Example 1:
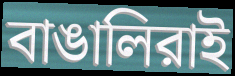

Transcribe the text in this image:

বাঙালিরাই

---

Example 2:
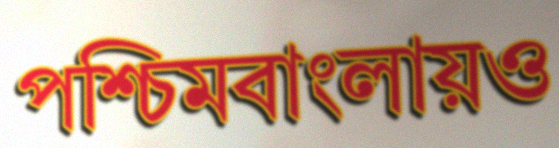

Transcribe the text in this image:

পশ্চিমবাংলায়ও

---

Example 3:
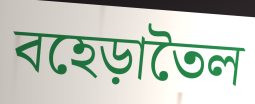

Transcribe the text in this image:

বহেড়াতৈল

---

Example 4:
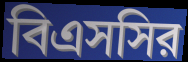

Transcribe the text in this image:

বিএসসির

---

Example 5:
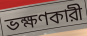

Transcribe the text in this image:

ভক্ষণকারী